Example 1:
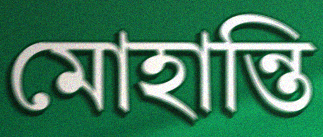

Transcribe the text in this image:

মোহান্তি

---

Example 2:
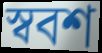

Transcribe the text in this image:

স্ববশ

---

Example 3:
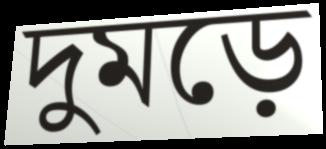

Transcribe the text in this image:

দুমড়ে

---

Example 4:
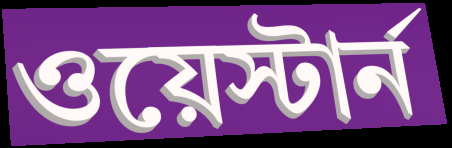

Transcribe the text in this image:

ওয়েস্টার্ন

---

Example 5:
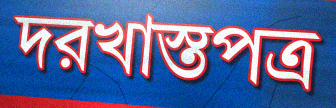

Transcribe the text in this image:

দরখাস্তপত্র